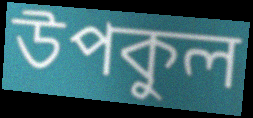
উপকুল